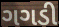
ગગડી